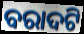
ବରାଦଟି